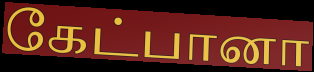
கேட்பானா